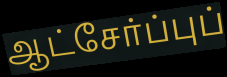
ஆட்சேர்ப்புப்